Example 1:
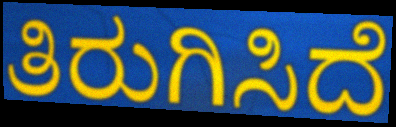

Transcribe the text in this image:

ತಿರುಗಿಸಿದೆ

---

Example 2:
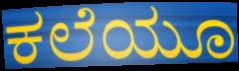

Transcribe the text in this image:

ಕಲೆಯೂ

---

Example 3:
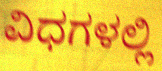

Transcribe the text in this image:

ವಿಧಗಳಲ್ಲಿ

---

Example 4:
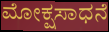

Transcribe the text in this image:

ಮೋಕ್ಷಸಾಧನೆ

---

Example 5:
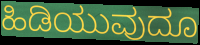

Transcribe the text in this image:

ಹಿಡಿಯುವುದೂ